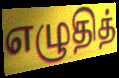
எழுதித்